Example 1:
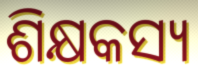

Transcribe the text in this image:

ଶିକ୍ଷକସ୍ୟ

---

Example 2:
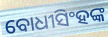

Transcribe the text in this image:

ବୋଧୀସିଂହଙ୍କ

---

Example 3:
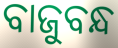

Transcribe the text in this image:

ବାଜୁବନ୍ଧ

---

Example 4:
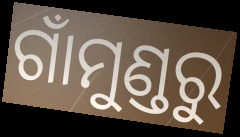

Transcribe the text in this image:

ଗାଁମୁଣ୍ଡରୁ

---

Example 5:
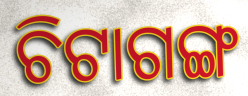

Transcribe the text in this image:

ଚିଟାଗଙ୍ଗ